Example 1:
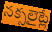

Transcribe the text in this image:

నక్సలైట్లే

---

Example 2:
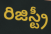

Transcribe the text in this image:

రిజిస్ట్రీ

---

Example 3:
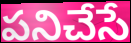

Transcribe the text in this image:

పనిచేసే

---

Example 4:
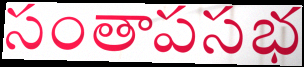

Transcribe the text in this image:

సంతాపసభ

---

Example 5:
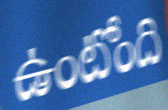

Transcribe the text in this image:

ఉంటోంది